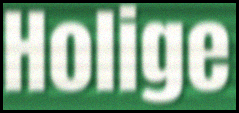
Holige